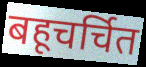
बहूचर्चित